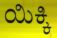
ಯಿಕ್ಕಿ